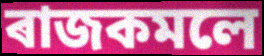
ৰাজকমলে